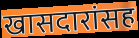
खासदारांसह